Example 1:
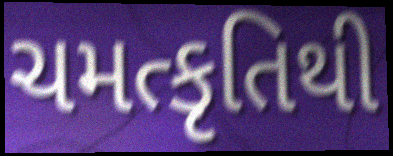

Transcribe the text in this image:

ચમત્કૃતિથી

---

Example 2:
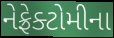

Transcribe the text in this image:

નેફ્રેક્ટોમીના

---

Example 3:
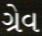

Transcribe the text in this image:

ગ્રેવ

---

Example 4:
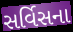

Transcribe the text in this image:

સર્વિસના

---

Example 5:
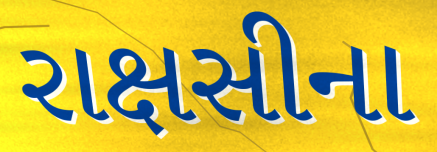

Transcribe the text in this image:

રાક્ષસીના